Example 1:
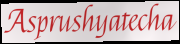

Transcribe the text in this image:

Asprushyatecha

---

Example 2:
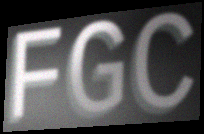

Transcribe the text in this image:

FGC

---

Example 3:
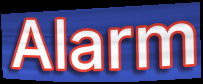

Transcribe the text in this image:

Alarm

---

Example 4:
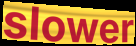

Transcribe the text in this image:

slower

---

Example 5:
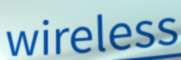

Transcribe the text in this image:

wireless